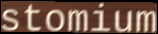
stomium